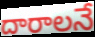
దారాలనే